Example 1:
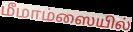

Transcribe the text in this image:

மீமாம்ஸையில்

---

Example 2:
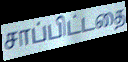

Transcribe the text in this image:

சாப்பிட்டதை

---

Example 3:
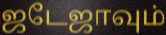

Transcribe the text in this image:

ஜடேஜாவும்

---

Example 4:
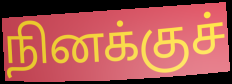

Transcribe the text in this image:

நினக்குச்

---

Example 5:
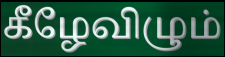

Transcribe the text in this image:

கீழேவிழும்